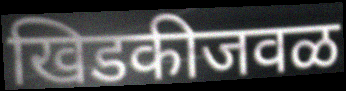
खिडकीजवळ